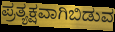
ಪ್ರತ್ಯಕ್ಷವಾಗಿಬಿಡುವ